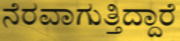
ನೆರವಾಗುತ್ತಿದ್ದಾರೆ